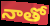
నాతో